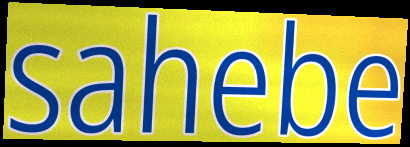
sahebe